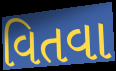
વિતવા